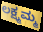
ಲಕ್ಷ್ಮಮ್ಮ